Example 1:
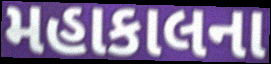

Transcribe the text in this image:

મહાકાલના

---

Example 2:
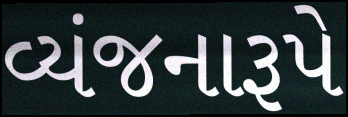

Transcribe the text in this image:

વ્યંજનારૂપે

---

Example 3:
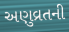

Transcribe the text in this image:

અણુવ્રતની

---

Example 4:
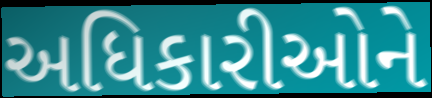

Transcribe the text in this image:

અધિકારીઓને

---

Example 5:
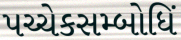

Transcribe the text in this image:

પચ્ચેકસમ્બોધિં